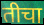
तीचा